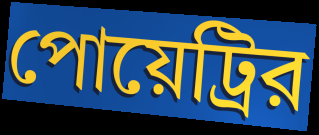
পোয়েট্রির